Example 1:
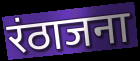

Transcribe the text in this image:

रंठाजना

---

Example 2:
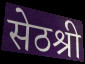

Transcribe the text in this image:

सेठश्री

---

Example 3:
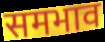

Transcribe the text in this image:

समभाव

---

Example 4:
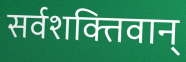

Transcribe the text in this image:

सर्वशक्तिवान्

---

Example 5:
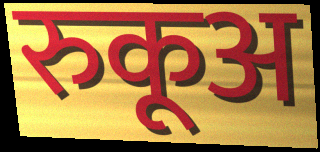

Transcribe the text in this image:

रुकूअ